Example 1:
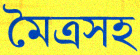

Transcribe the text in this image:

মৈত্রসহ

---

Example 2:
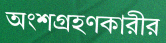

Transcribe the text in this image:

অংশগ্রহণকারীর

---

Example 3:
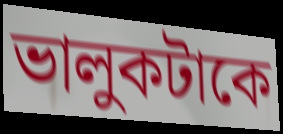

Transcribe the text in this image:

ভালুকটাকে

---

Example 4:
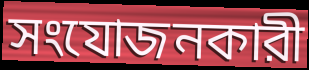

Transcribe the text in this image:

সংযোজনকারী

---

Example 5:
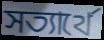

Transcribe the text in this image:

সত্যার্থে